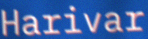
Harivar